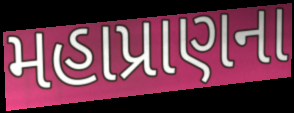
મહાપ્રાણના